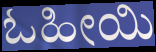
ಓಹೀಯಿ